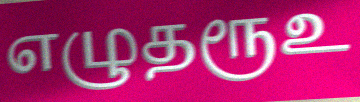
எழுதரூஉ